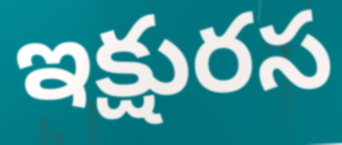
ఇక్షురస